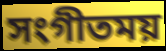
সংগীতময়